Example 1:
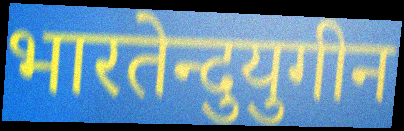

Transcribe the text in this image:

भारतेन्दुयुगीन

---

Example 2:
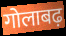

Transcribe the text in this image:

गोलाबढ़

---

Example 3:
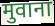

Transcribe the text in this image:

मुवाना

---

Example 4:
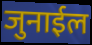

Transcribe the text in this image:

जुनाईल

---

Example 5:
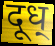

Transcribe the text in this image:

दूध्